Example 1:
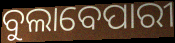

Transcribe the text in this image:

ବୁଲାବେପାରୀ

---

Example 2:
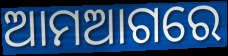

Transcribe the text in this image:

ଆମଆଗରେ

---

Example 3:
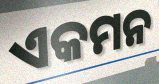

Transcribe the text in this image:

ଏକମନ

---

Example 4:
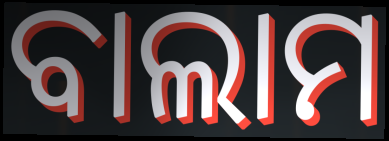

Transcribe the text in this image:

ବାଲାମ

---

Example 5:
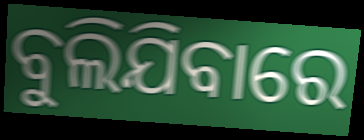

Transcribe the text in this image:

ବୁଲିଯିବାରେ